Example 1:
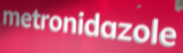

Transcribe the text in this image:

metronidazole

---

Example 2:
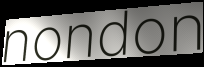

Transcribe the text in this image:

nondon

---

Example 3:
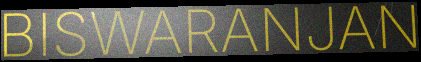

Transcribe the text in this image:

BISWARANJAN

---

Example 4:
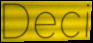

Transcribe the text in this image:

Deci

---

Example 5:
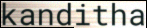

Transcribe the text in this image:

kanditha